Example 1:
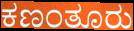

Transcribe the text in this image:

ಕಣಂತೂರು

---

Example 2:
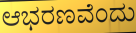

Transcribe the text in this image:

ಆಭರಣವೆಂದು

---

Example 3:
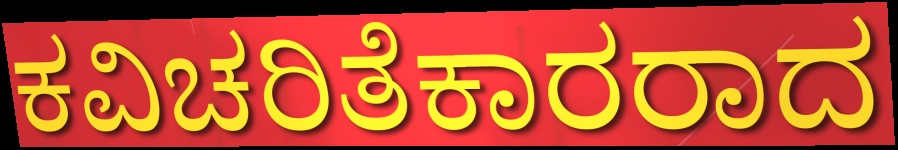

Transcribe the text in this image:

ಕವಿಚರಿತೆಕಾರರಾದ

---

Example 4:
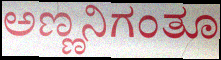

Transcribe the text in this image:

ಅಣ್ಣನಿಗಂತೂ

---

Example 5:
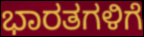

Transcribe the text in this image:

ಭಾರತಗಳಿಗೆ